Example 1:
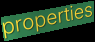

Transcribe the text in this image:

properties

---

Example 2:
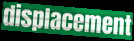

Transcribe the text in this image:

displacement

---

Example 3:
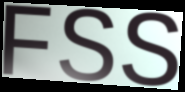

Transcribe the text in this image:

FSS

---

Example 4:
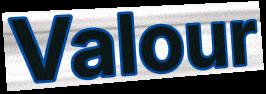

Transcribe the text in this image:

Valour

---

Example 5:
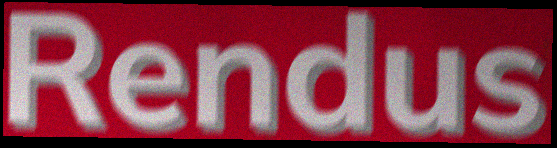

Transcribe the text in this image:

Rendus